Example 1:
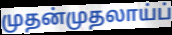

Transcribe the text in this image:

முதன்முதலாய்ப்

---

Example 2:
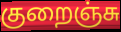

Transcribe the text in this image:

குறைஞ்சு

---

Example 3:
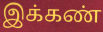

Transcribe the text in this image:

இக்கண்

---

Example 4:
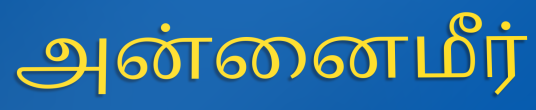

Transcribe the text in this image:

அன்னைமீர்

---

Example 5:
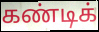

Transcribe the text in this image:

கண்டிக்